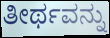
ತೀರ್ಥವನ್ನು